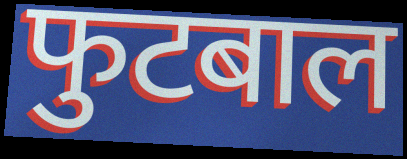
फुटबाल